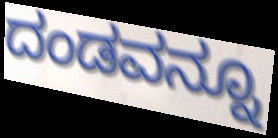
ದಂಡವನ್ನೂ